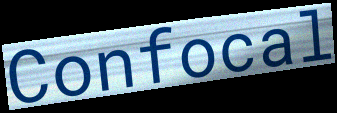
Confocal